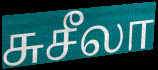
சுசீலா